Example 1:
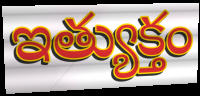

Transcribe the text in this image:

ఇత్యుక్తం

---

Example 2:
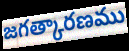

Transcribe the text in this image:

జగత్కారణము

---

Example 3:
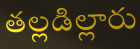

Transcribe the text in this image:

తల్లడిల్లారు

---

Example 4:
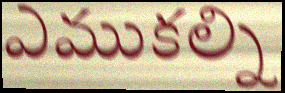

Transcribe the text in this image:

ఎముకల్ని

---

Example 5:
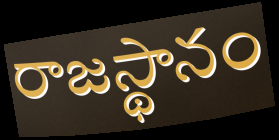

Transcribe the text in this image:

రాజస్థానం